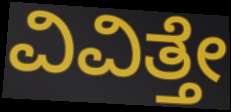
ವಿವಿತ್ತೇ